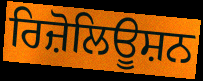
ਰਿਜ਼ੋਲਿਊਸ਼ਨ